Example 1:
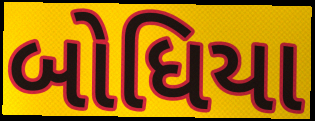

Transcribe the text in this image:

બોધિયા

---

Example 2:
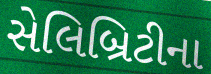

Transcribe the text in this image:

સેલિબ્રિટીના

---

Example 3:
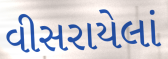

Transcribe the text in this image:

વીસરાયેલાં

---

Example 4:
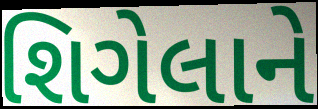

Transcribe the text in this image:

શિગેલાને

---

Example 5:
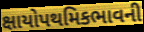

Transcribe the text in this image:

ક્ષાયોપથમિકભાવની